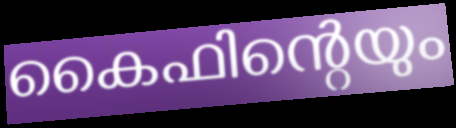
കൈഫിന്റെയും